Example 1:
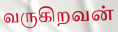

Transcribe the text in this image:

வருகிறவன்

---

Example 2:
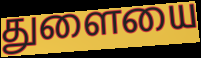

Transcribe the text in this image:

துளையை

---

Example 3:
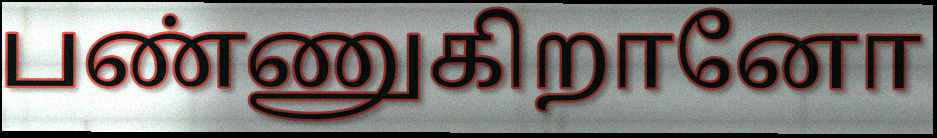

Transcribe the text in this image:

பண்ணுகிறானோ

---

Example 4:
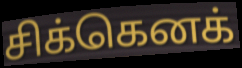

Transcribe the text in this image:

சிக்கெனக்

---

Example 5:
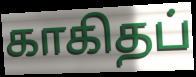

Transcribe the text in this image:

காகிதப்